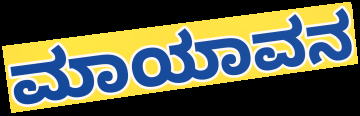
ಮಾಯಾವನ